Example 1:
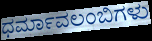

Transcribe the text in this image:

ಧರ್ಮಾವಲಂಬಿಗಳು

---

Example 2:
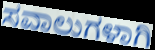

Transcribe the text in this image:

ಸವಾಲುಗಳಾಗಿ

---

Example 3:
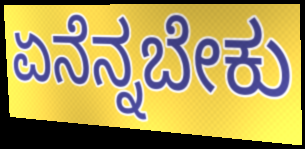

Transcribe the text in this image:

ಏನೆನ್ನಬೇಕು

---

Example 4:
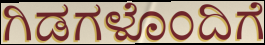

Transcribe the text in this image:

ಗಿಡಗಳೊಂದಿಗೆ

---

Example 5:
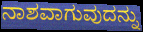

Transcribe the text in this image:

ನಾಶವಾಗುವುದನ್ನು